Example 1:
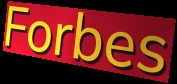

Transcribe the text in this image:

Forbes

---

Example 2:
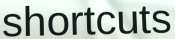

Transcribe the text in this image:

shortcuts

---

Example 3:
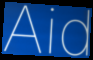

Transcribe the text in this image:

Aid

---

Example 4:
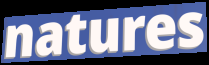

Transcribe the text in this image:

natures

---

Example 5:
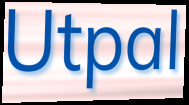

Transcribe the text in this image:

Utpal